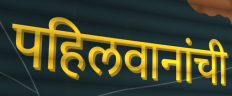
पहिलवानांची